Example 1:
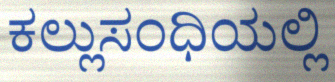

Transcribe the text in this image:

ಕಲ್ಲುಸಂಧಿಯಲ್ಲಿ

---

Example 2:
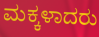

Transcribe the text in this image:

ಮಕ್ಕಳಾದರು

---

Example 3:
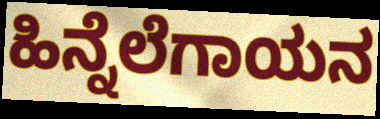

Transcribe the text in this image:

ಹಿನ್ನೆಲೆಗಾಯನ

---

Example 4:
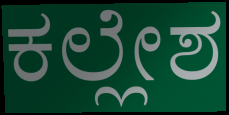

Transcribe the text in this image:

ಕಲ್ಲೇಶ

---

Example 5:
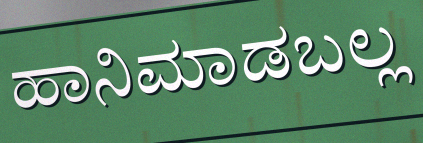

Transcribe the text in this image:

ಹಾನಿಮಾಡಬಲ್ಲ